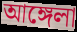
আঙ্গেলা